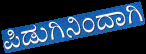
ಪಿಡುಗಿನಿಂದಾಗಿ